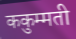
ककुम्मती